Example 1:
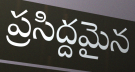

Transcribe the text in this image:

ప్రసిద్దమైన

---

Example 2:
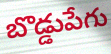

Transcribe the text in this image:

బొడ్డుపేగు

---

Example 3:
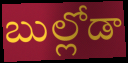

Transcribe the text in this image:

బుల్లోడా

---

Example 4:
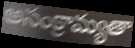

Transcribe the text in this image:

అసంక్రామ్యతా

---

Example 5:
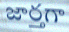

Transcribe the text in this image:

జార్తగా